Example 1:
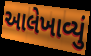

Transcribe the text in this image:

આલેખાવ્યું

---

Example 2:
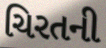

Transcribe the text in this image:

ચિરતની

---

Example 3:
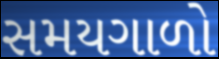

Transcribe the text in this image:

સમયગાળો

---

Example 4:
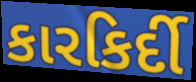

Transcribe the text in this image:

કારકિર્દી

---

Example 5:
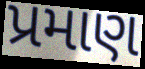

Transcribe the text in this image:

પ્રમાણ